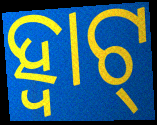
ହ୍ବାଟ୍